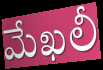
మేఖలీ